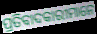
ପ୍ରତିବାଦକାରୀମାନେ